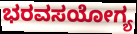
ಭರವಸಯೋಗ್ಯ